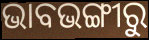
ଭାବଭଙ୍ଗୀରୁ